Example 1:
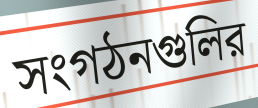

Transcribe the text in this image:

সংগঠনগুলির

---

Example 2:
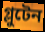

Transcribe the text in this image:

গ্লুটেন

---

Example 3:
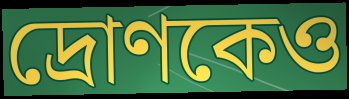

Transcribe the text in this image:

দ্রোণকেও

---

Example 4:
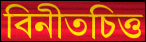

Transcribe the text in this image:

বিনীতচিত্ত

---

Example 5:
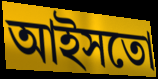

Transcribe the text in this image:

আইসতো